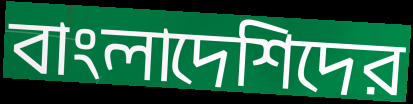
বাংলাদেশিদের